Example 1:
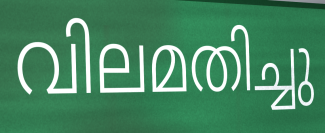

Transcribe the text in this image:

വിലമതിച്ചു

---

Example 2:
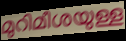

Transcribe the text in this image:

മുറിമീശയുള്ള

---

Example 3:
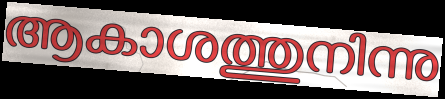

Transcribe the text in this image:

ആകാശത്തുനിന്നു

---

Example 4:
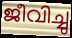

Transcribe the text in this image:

ജീവിച്ചു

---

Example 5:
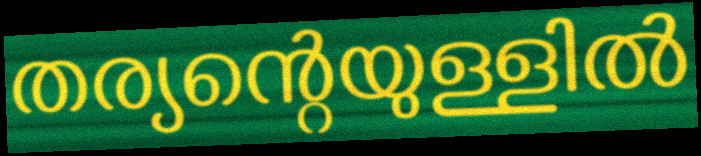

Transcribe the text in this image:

തര്യന്റെയുള്ളിൽ